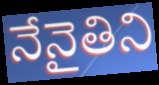
నేనైతిని